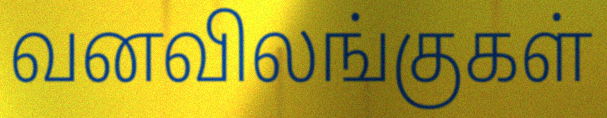
வனவிலங்குகள்